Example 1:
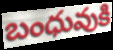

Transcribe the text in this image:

బంధువుకి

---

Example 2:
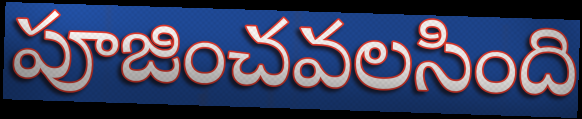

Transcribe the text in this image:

పూజించవలసింది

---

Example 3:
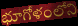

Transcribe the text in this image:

భూగోళంలోని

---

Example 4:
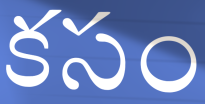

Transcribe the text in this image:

కసం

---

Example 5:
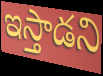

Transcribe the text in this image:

ఇస్తాడని